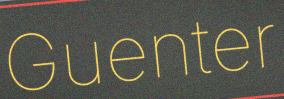
Guenter